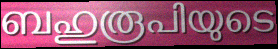
ബഹുരൂപിയുടെ